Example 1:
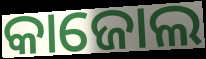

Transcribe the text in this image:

କାଜୋଲ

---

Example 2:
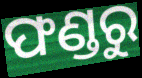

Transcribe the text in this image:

ଫଣ୍ଡରୁ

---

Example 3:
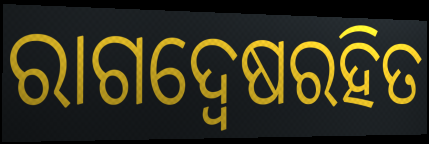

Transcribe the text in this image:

ରାଗଦ୍ୱେଷରହିତ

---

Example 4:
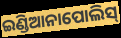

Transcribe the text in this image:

ଇଣ୍ଡିଆନାପୋଲିସ୍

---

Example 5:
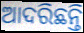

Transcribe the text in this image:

ଆଦରିଛନ୍ତି